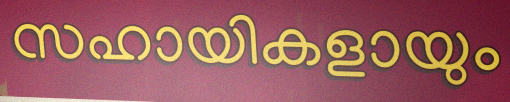
സഹായികളായും